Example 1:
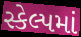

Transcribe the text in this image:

સ્કેલ્પમાં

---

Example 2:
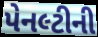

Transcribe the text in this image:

પેનલ્ટીની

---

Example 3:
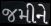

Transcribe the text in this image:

જમીને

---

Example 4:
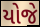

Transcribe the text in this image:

યોજે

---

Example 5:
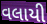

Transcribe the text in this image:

વલાયી